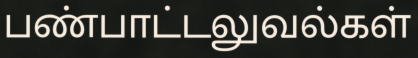
பண்பாட்டலுவல்கள்